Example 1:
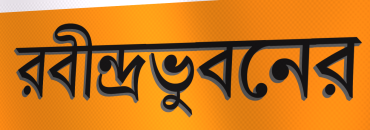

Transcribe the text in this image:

রবীন্দ্রভুবনের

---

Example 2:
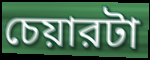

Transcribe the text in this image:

চেয়ারটা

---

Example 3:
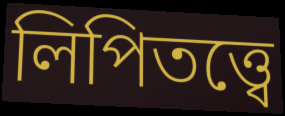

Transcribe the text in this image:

লিপিতত্ত্বে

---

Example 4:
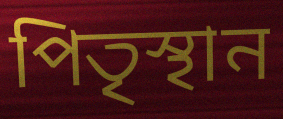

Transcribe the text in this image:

পিতৃস্থান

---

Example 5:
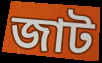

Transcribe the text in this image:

জাট